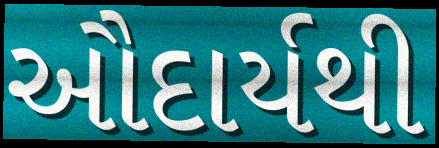
ઔદાર્યથી